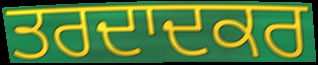
ਤਰਦਾਦਕਰ